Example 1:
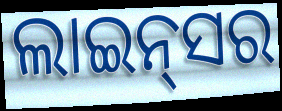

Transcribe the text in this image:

ଲାଇନ୍‍ସର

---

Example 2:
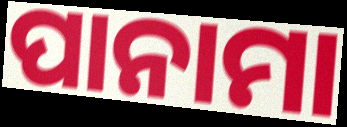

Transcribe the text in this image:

ପାନାମା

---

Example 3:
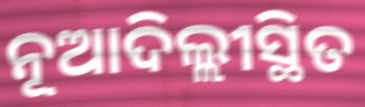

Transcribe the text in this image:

ନୂଆଦିଲ୍ଲୀସ୍ଥିତ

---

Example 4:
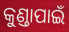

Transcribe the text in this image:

କୁଣ୍ଡାପାଇଁ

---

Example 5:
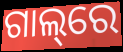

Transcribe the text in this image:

ଗାଲ୍‌ରେ